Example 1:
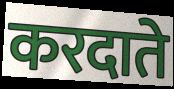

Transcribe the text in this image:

करदाते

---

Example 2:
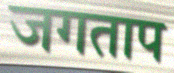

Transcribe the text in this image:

जगताप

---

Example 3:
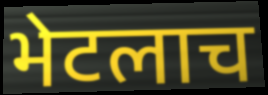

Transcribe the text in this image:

भेटलाच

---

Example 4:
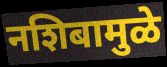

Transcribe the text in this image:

नशिबामुळे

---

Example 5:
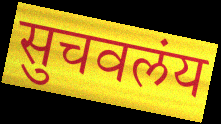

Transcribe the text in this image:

सुचवलंय